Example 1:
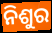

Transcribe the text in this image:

ନିଶୁର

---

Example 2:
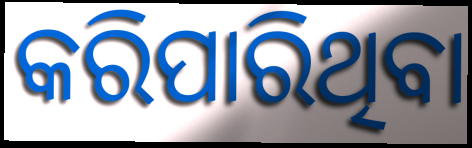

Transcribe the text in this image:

କରିପାରିଥିବା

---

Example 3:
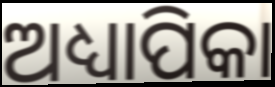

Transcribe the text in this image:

ଅଧ୍ୟାପିକା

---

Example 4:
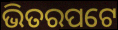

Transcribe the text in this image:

ଭିତରପଟେ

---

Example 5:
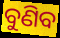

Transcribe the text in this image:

ବୁଣିବ